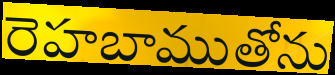
రెహబాముతోను